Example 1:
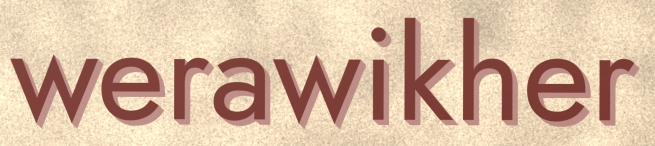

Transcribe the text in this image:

werawikher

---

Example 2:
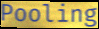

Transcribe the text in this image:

Pooling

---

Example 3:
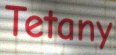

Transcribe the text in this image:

Tetany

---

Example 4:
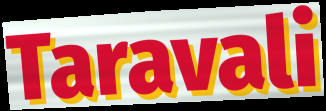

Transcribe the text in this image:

Taravali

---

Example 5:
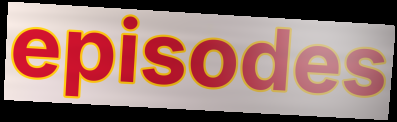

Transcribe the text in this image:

episodes